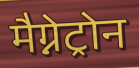
मैग्नेट्रोन